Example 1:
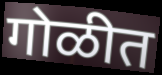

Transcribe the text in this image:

गोळीत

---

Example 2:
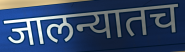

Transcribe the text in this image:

जालन्यातच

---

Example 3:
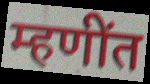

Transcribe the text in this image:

म्हणींत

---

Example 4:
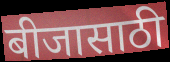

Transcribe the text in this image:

बीजासाठी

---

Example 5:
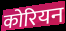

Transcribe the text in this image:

कोरियन